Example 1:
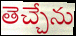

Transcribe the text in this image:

తెచ్చేను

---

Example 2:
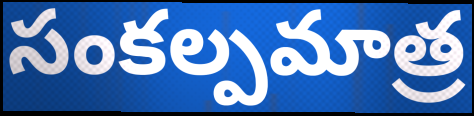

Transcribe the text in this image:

సంకల్పమాత్ర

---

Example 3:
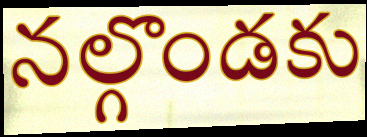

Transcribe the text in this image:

నల్గొండకు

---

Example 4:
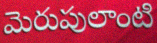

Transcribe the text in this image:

మెరుపులాంటి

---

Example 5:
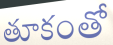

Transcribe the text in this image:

తూకంతో